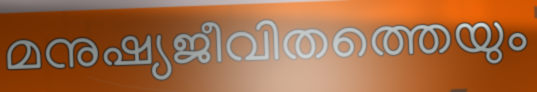
മനുഷ്യജീവിതത്തെയും